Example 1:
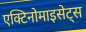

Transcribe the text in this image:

एक्टिनोमाइसेट्स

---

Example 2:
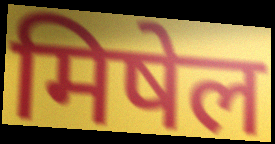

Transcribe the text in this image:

मिषेल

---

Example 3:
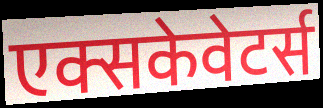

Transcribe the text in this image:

एक्सकेवेटर्स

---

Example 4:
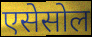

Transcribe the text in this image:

एसेसोल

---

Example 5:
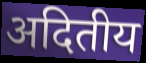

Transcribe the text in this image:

अदितीय